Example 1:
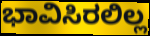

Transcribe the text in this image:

ಭಾವಿಸಿರಲಿಲ್ಲ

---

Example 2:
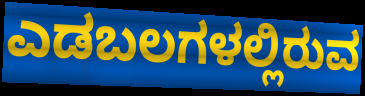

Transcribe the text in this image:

ಎಡಬಲಗಳಲ್ಲಿರುವ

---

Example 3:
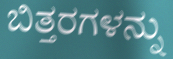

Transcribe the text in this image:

ಬಿತ್ತರಗಳನ್ನು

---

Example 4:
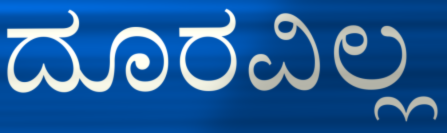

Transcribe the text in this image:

ದೂರವಿಲ್ಲ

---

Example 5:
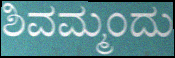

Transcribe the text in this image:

ಶಿವಮ್ಮಂದು